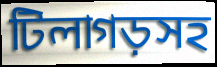
টিলাগড়সহ